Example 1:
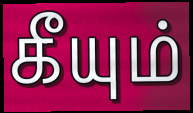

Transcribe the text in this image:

கீயும்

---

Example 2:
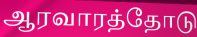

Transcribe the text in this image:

ஆரவாரத்தோடு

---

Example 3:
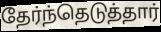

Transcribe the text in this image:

தேர்ந்தெடுத்தார்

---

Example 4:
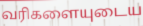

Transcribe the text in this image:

வரிகளையுடைய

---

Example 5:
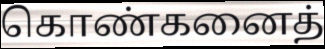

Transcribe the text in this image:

கொண்கனைத்